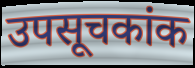
उपसूचकांक